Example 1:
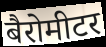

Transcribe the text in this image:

बैरोमीटर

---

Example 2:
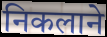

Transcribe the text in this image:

निकलाने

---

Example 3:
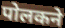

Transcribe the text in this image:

पोलकने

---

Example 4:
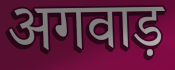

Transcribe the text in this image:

अगवाड़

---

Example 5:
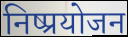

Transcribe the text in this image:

निष्प्रयोजन